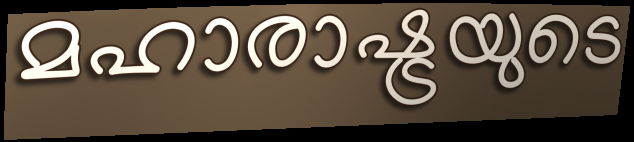
മഹാരാഷ്ട്രയുടെ